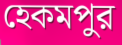
হেকমপুর